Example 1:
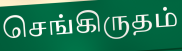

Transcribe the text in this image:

செங்கிருதம்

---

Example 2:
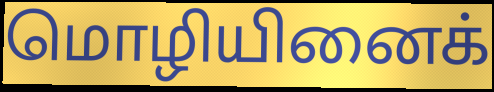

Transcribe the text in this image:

மொழியினைக்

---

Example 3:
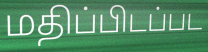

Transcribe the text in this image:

மதிப்பிடப்பட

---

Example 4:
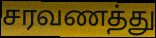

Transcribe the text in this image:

சரவணத்து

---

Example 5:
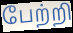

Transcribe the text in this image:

பேற்றி